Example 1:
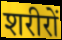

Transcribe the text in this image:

शरीरों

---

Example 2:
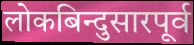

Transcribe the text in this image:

लोकबिन्दुसारपूर्व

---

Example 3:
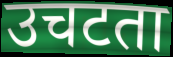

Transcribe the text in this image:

उचटता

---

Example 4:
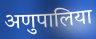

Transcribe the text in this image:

अणुपालिया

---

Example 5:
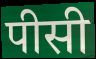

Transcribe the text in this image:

पीसी